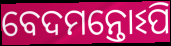
ବେଦମନ୍ତୋଽପି